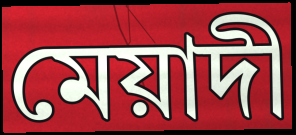
মেয়াদী